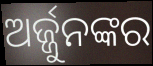
ଅର୍ଜ୍ଜୁନଙ୍କର